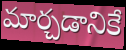
మార్చడానికే